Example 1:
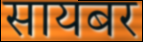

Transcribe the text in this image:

सायबर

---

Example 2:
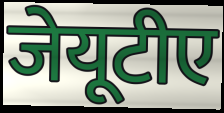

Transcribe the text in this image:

जेयूटीए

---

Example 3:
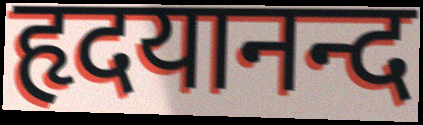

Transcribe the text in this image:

हृदयानन्द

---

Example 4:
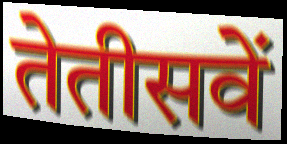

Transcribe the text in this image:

तेतीसवें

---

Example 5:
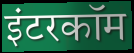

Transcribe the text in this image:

इंटरकॉम